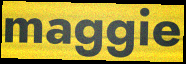
maggie